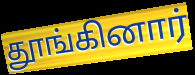
தூங்கினார்